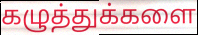
கழுத்துக்களை